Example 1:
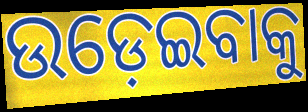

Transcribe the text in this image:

ଉଡ଼େଇବାକୁ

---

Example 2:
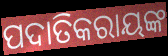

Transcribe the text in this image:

ପଦାତିକରାୟଙ୍କ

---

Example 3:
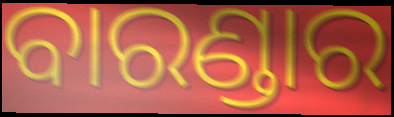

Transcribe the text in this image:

ବାରଣ୍ଡାର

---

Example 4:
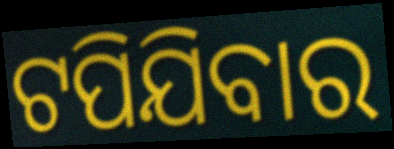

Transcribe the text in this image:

ଟପିଯିବାର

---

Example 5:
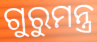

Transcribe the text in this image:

ଗୁରୁମନ୍ତ୍ର